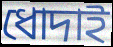
ধোদাই